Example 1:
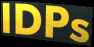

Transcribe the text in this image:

IDPs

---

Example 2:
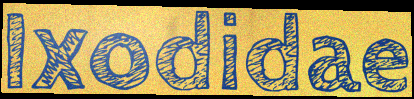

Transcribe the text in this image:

Ixodidae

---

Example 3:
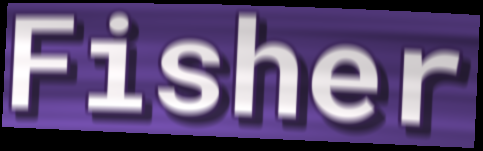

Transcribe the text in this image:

Fisher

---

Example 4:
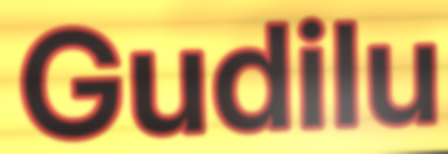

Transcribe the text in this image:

Gudilu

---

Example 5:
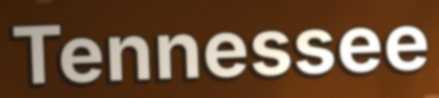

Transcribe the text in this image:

Tennessee